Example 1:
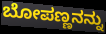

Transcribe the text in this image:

ಬೋಪಣ್ಣನನ್ನು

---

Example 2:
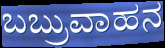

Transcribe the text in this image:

ಬಬ್ರುವಾಹನ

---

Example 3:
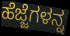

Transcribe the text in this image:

ಹೆಜ್ಜೆಗಳನ್ನ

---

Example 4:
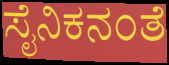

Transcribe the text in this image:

ಸೈನಿಕನಂತೆ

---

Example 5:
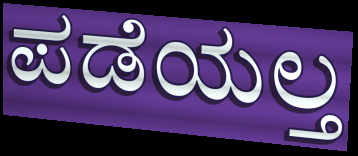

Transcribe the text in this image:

ಪಡೆಯಲ್ತ